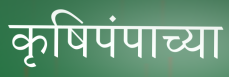
कृषिपंपाच्या